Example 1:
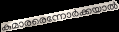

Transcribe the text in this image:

കുമാരരെന്നോർക്കയാൽ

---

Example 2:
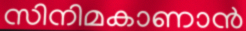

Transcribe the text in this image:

സിനിമകാണാൻ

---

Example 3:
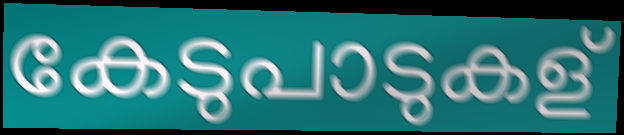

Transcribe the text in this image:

കേടുപാടുകള്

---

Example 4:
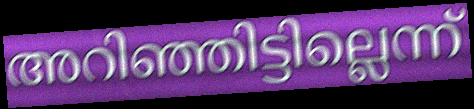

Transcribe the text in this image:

അറിഞ്ഞിട്ടില്ലെന്ന്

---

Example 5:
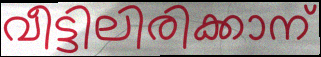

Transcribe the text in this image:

വീട്ടിലിരിക്കാന്